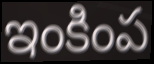
ఇంకింప